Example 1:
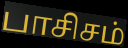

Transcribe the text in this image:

பாசிசம்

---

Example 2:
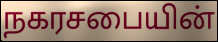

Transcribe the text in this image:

நகரசபையின்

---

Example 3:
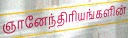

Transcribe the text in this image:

ஞானேந்திரியங்களின்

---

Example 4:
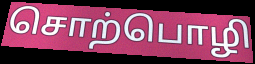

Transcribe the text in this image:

சொற்பொழி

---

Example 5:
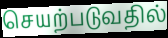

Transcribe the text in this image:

செயற்படுவதில்